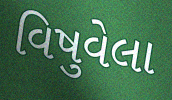
વિષુવેલા